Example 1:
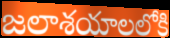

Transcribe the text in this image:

జలాశయాలలోకి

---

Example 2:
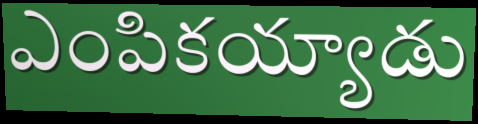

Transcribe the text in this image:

ఎంపికయ్యాడు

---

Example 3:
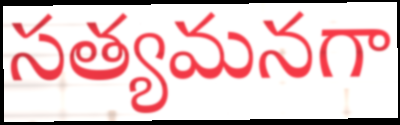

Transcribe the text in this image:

సత్యమనగా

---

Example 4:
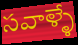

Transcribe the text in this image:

సవాళ్ళే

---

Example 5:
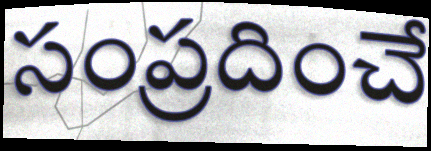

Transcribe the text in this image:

సంప్రదించే